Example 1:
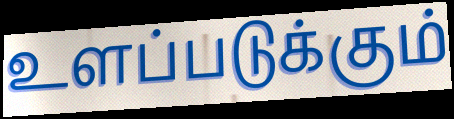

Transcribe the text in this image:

உளப்படுக்கும்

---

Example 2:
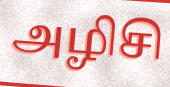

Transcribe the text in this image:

அழிசி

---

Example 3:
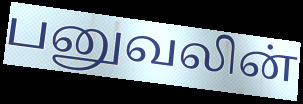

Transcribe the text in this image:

பனுவலின்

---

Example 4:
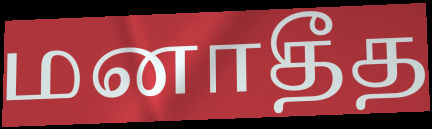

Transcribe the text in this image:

மனாதீத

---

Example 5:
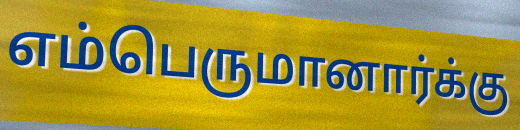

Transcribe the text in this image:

எம்பெருமானார்க்கு